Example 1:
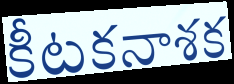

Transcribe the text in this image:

కీటకనాశక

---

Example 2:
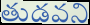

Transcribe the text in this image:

తుడవని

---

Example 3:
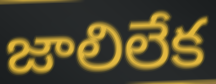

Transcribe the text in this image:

జాలిలేక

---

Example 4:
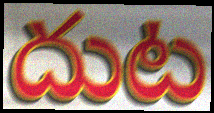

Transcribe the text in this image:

దుట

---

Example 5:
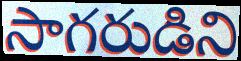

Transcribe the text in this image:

సాగరుడిని